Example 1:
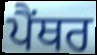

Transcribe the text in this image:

ਪੈੰਥਰ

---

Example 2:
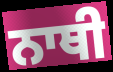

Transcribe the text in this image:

ਨਾਥੀ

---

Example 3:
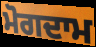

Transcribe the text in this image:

ਮੋਗਦਾਮ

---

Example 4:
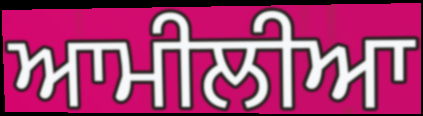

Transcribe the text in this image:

ਆਮੀਲੀਆ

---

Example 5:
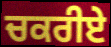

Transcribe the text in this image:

ਚਕਰੀਏ